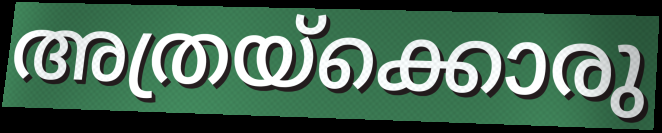
അത്രയ്ക്കൊരു